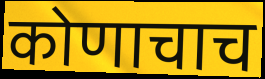
कोणाचाच